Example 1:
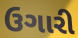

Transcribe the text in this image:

ઉગારી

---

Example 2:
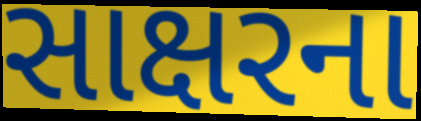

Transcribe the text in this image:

સાક્ષરના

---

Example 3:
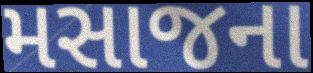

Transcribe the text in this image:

મસાજના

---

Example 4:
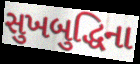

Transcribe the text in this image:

સુખબુદ્ધિના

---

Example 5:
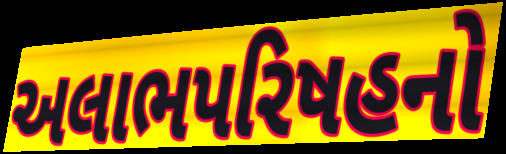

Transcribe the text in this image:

અલાભપરિષહનો